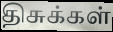
திசுக்கள்